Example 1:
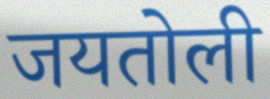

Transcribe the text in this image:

जयतोली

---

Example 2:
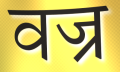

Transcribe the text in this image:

वज्र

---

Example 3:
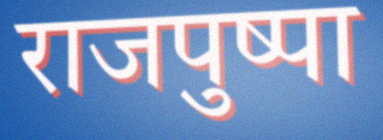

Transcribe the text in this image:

राजपुष्पा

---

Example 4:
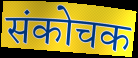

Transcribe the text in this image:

संकोचक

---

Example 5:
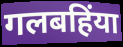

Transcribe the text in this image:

गलबहिंया